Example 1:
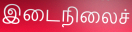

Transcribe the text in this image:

இடைநிலைச்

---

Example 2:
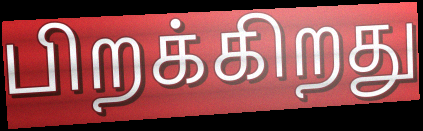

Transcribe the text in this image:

பிறக்கிறது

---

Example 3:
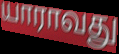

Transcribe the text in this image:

யாராவது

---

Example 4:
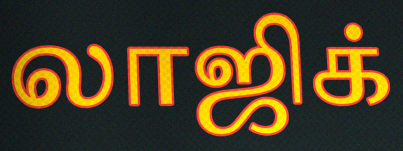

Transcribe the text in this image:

லாஜிக்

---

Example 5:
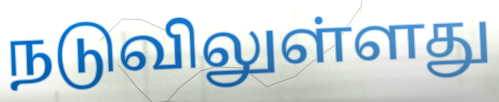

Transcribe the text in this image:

நடுவிலுள்ளது